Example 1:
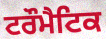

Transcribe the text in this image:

ਟਰੌਮੈਟਿਕ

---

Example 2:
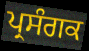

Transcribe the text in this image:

ਪ੍ਰਸੰਗਕ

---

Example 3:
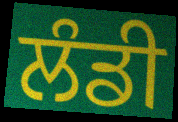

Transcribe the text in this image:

ਲੰਡੀ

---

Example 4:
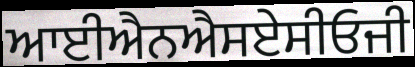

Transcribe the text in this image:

ਆਈਐਨਐਸਏਸੀਓਜੀ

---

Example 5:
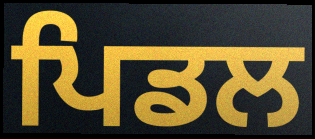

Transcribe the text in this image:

ਪਿਡਲ